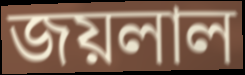
জয়লাল